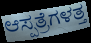
ಆಸ್ಪತ್ರೆಗಳತ್ತ